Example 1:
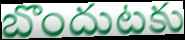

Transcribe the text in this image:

బొందుటకు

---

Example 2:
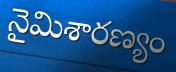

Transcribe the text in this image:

నైమిశారణ్యం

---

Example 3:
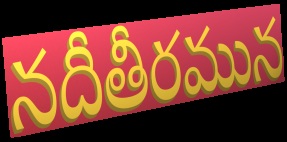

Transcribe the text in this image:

నదీతీరమున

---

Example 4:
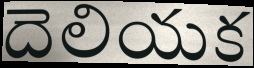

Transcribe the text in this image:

దెలియక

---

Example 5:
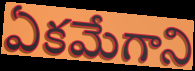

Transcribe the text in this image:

ఏకమేగాని